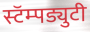
स्टॅम्पड्युटी